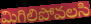
మిగిలిపోవలసి